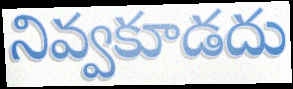
నివ్వకూడదు